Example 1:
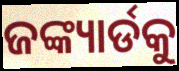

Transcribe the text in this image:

ଜଙ୍କ୍ୟାର୍ଡକୁ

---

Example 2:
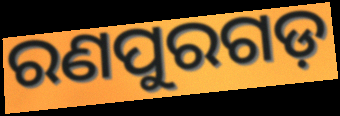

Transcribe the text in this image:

ରଣପୁରଗଡ଼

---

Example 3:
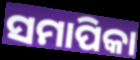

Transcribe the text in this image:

ସମାପିକା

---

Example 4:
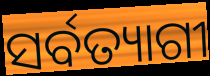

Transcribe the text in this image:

ସର୍ବତ୍ୟାଗୀ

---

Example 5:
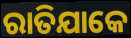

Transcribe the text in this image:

ରାତିଯାକେ